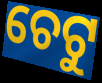
ଚେଟୁ